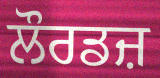
ਲੌਰਡਜ਼